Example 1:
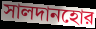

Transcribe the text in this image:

সালদানহোর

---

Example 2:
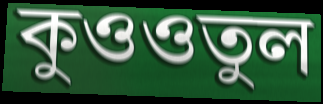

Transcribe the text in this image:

কুওওতুল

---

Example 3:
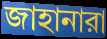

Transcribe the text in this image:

জাহানারা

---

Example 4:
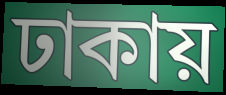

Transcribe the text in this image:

ঢাকায়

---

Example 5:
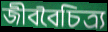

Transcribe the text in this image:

জীববৈচিত্র্য